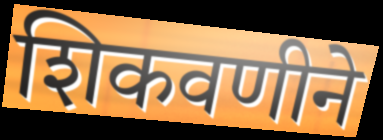
शिकवणीने